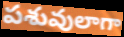
పశువులాగా